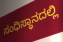
ಸಂಧಿಸ್ಥಾನದಲ್ಲಿ